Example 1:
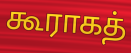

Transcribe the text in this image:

கூராகத்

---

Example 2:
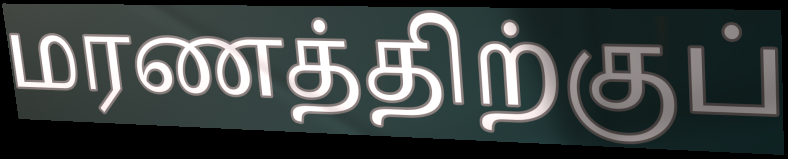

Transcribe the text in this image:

மரணத்திற்குப்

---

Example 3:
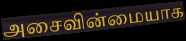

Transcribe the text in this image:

அசைவின்மையாக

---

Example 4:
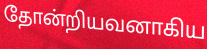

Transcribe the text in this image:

தோன்றியவனாகிய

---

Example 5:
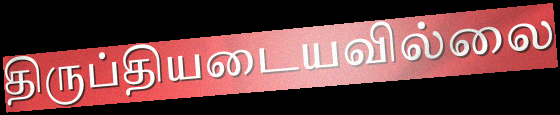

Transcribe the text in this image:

திருப்தியடையவில்லை